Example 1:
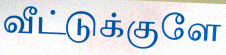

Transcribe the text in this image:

வீட்டுக்குளே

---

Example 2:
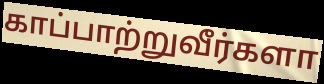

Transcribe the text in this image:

காப்பாற்றுவீர்களா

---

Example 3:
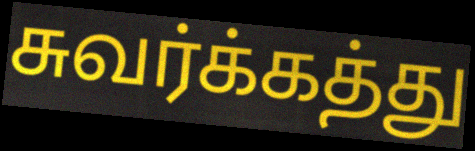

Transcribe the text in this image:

சுவர்க்கத்து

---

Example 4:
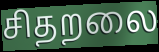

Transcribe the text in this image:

சிதறலை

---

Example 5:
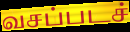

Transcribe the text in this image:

வசப்படச்